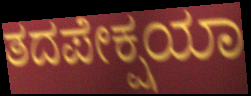
ತದಪೇಕ್ಷಯಾ